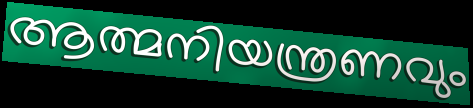
ആത്മനിയന്ത്രണവും